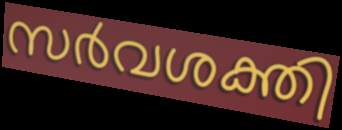
സർവശക്തി